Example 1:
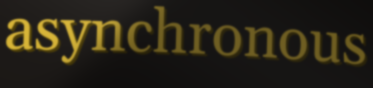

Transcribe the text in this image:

asynchronous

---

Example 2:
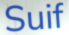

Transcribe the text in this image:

Suif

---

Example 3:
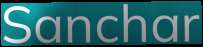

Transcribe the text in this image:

Sanchar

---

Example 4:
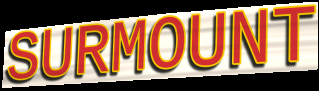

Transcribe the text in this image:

SURMOUNT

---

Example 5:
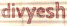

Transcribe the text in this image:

divyesh